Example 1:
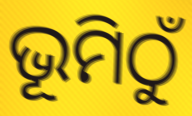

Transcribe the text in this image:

ଭୂମିଠୁଁ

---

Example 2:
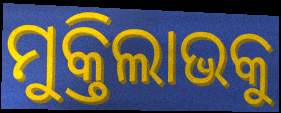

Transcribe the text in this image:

ମୁକ୍ତିଲାଭକୁ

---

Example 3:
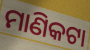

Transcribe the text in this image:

ମାଣିକଟା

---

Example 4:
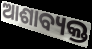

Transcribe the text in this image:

ଆଶାବ୍ୟକ୍ତ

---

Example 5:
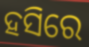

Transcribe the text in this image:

ହସିରେ